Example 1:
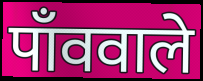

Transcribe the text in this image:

पाँववाले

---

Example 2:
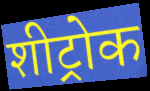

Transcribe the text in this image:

शीट्रोक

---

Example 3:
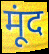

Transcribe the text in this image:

मूंद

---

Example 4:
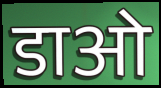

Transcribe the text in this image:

डाओ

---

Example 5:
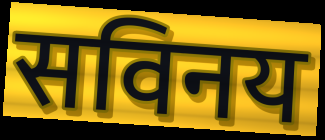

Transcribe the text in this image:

सविनय